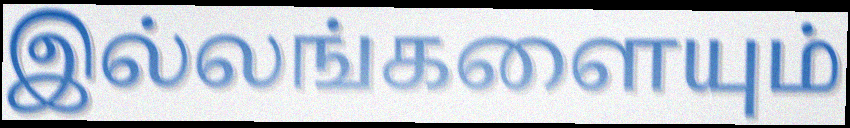
இல்லங்களையும்